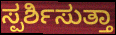
ಸ್ಪರ್ಶಿಸುತ್ತಾ